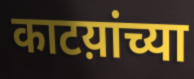
काटय़ांच्या